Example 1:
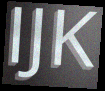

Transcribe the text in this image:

IJK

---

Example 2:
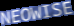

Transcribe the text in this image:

NEOWISE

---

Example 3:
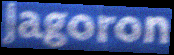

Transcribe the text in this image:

Jagoron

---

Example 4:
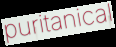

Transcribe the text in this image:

puritanical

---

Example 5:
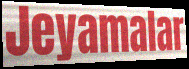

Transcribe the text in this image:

Jeyamalar